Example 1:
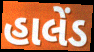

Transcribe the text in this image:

હાલેંડ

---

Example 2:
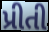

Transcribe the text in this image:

પ્રીતી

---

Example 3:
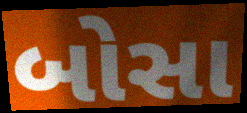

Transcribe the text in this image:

બોસા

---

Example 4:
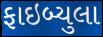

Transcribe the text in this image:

ફાઇબ્યુલા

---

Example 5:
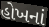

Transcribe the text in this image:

હોખનાં